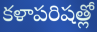
కళాపరిషత్లో